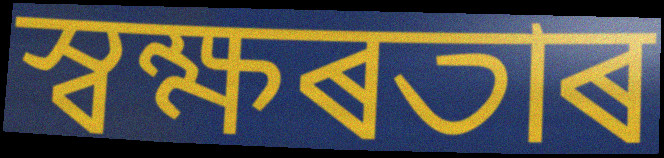
স্বক্ষৰতাৰ